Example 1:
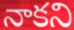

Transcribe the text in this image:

నాకని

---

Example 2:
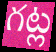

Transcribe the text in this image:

గట్ల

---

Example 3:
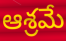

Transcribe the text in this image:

ఆశ్రమే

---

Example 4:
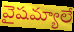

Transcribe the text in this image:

వైషమ్యాలే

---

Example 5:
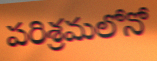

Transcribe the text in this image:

పరిశ్రమలోనో